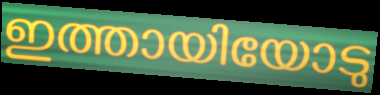
ഇത്തായിയോടു